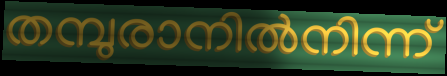
തമ്പുരാനിൽനിന്ന്